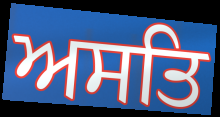
ਅਸਤਿ